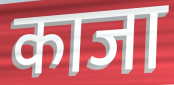
काजा